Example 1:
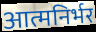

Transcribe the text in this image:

आत्मनिर्भर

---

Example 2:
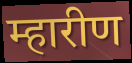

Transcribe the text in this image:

म्हारीण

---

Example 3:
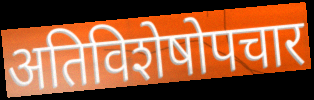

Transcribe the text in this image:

अतिविशेषोपचार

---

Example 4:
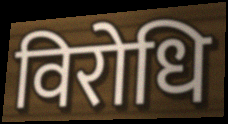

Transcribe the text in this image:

विरोधि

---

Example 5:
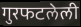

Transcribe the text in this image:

गुरफटलेली